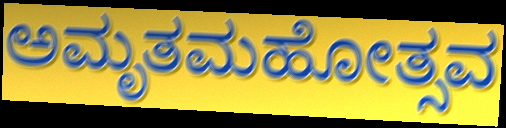
ಅಮೃತಮಹೋತ್ಸವ